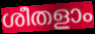
ശീതളാം